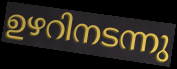
ഉഴറിനടന്നു